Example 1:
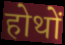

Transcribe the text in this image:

होथों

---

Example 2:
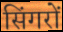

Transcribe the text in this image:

सिंगरों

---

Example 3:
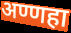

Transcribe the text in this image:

अण्णहा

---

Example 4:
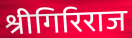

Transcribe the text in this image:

श्रीगिरिराज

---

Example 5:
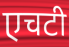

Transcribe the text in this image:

एचटी